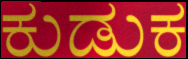
ಕುಡುಕ